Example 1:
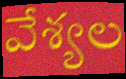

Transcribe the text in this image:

వేశ్యల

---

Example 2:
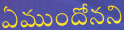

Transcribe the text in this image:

ఏముందోనని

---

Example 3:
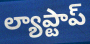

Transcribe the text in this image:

ల్యాప్టాప్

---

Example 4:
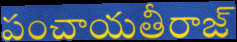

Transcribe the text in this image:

పంచాయతీరాజ్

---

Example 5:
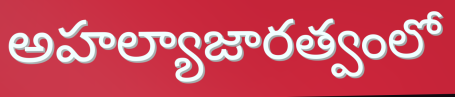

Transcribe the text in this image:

అహల్యాజారత్వంలో